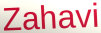
Zahavi